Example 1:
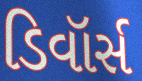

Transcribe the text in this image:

ડિવૉર્સ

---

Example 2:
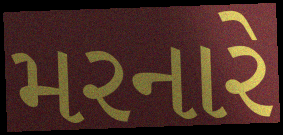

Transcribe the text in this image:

મરનારે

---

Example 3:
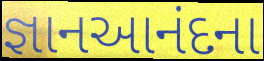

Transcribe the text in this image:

જ્ઞાનઆનંદના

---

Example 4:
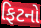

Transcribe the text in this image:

ફિટનો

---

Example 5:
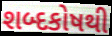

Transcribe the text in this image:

શબ્દકોષથી